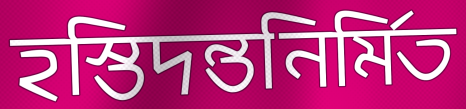
হস্তিদন্তনির্মিত